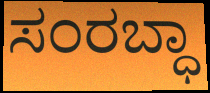
ಸಂರಬ್ಧಾ